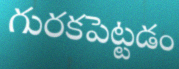
గురకపెట్టడం